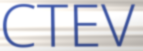
CTEV